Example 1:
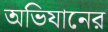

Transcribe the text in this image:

অভিযানের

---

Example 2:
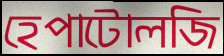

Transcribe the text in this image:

হেপাটোলজি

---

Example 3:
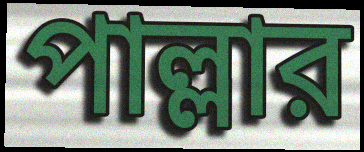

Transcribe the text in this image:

পাল্লার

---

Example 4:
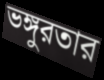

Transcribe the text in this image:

ভঙ্গুরতার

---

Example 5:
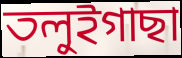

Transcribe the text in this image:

তলুইগাছা